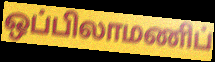
ஒப்பிலாமணிப்